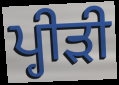
ਪ੍ਹੀੜੀ